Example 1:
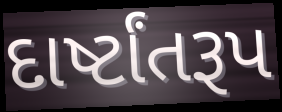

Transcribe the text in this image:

દાર્ષ્ટાંતરૂપ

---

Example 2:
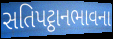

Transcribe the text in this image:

સતિપટ્ઠાનભાવના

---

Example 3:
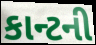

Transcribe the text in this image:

કાન્ટની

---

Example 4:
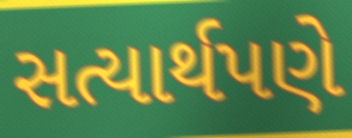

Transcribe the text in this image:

સત્યાર્થપણે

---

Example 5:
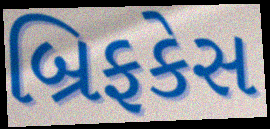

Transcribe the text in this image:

બ્રિફકેસ